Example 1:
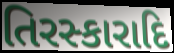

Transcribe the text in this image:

તિરસ્કારાદિ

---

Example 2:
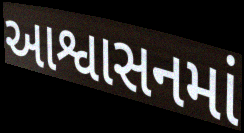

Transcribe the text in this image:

આશ્વાસનમાં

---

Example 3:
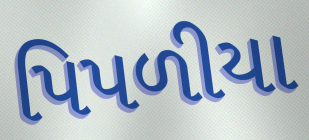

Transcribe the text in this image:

પિપળીયા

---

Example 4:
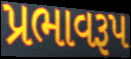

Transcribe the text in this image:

પ્રભાવરૂપ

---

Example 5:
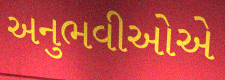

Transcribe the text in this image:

અનુભવીઓએ